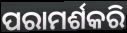
ପରାମର୍ଶକରି